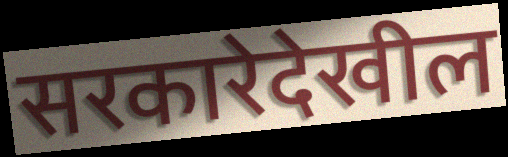
सरकारेदेखील